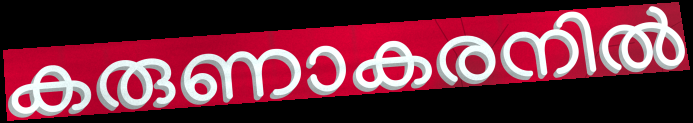
കരുണാകരനിൽ